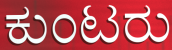
ಕುಂಟರು